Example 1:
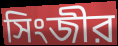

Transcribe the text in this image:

সিংজীর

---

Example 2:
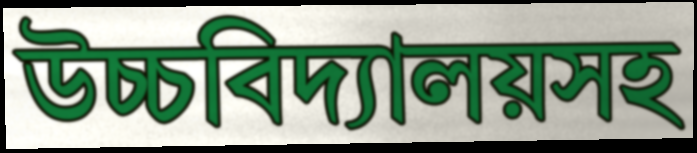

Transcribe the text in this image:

উচ্চবিদ্যালয়সহ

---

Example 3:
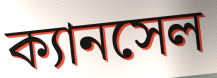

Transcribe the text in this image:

ক্যানসেল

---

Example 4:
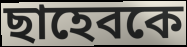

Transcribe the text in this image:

ছাহেবকে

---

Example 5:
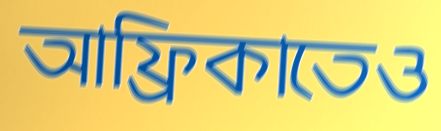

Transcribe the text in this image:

আফ্রিকাতেও